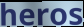
heros